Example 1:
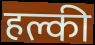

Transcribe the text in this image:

हल्‍की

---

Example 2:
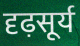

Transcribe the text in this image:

दृढ़सूर्य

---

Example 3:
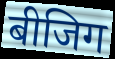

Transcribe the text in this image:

बीजिग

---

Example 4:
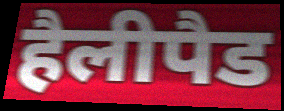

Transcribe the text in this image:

हैलीपैड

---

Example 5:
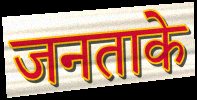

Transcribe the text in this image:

जनताके